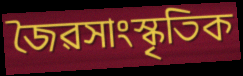
জৈৱসাংস্কৃতিক